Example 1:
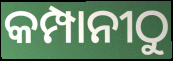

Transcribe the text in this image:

କମ୍ପାନୀଠୁ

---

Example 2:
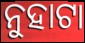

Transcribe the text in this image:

ନୁହାଟା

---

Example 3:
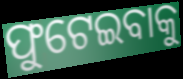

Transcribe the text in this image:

ଫୁଟେଇବାକୁ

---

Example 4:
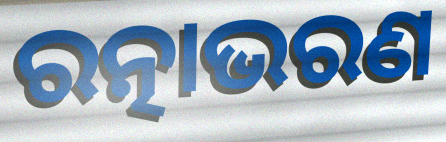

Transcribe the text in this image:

ରତ୍ନାଭରଣ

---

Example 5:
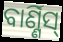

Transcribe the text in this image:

ବାର୍ଣ୍ଣିସ୍